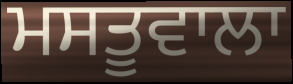
ਮਸਤੂਵਾਲਾ